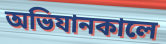
অভিযানকালে